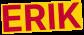
ERIK